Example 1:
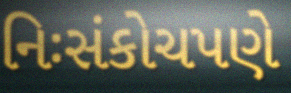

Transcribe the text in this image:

નિઃસંકોચપણે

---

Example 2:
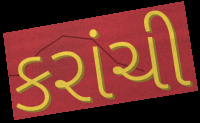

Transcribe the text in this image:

કરાંચી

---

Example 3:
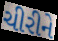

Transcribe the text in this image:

ચીરીને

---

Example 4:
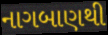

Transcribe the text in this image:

નાગબાણથી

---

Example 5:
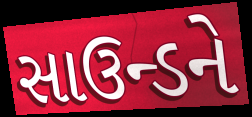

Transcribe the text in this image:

સાઉન્ડને